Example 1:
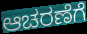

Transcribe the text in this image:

ಆಚರಣೆಗೆ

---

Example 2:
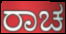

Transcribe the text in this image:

ರಾಚ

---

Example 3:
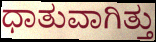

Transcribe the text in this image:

ಧಾತುವಾಗಿತ್ತು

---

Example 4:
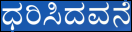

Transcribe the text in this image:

ಧರಿಸಿದವನೆ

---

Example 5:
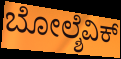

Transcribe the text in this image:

ಬೋಲ್ಶೆವಿಕ್